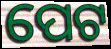
ପେଟ